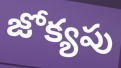
జోక్యపు